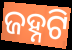
ଜହ୍ନଟି